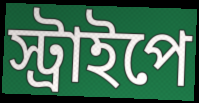
স্ট্রাইপে